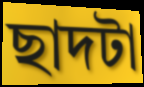
ছাদটা